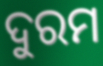
ଦୁରମ